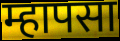
म्हापसा